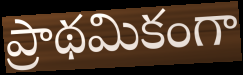
ప్రాథమికంగా